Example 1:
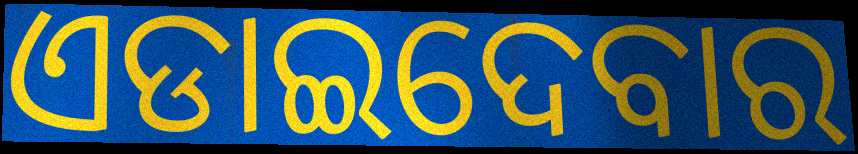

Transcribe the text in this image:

ଏଡାଇଦେବାର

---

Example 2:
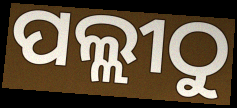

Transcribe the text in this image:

ପଲ୍ଲୀଠୁ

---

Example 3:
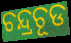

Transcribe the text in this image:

ଚନ୍ଦ୍ରଚୂଡ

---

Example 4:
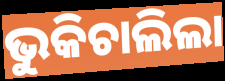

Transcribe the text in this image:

ଭୁକିଚାଲିଲା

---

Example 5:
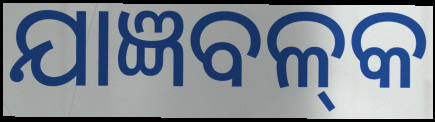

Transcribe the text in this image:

ଯାଜ୍ଞବଳ୍‌କ